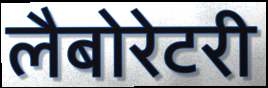
लैबोरेटरी